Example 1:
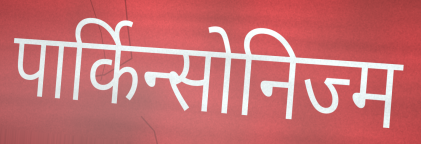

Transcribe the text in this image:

पार्किन्सोनिज्म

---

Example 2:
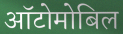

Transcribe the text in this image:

ऑटोमोबिल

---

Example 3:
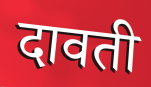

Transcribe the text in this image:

दावती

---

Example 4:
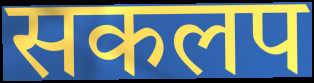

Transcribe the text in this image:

सकलप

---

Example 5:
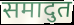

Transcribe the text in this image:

समादुत